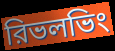
রিভলভিং